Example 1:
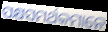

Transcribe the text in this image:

ପକ୍ଷସମର୍ଥକମାନେ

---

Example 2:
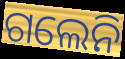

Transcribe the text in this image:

ଗଲେନି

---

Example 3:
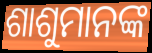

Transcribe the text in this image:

ଶାଶୁମାନଙ୍କ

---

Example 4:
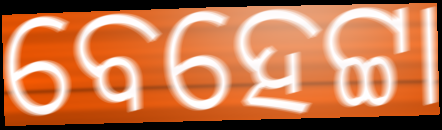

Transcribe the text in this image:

ବେହେଟ୍ଟା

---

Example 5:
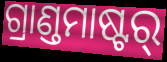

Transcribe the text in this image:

ଗ୍ରାଣ୍ଡମାଷ୍ଟର୍